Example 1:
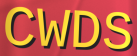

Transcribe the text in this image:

CWDS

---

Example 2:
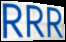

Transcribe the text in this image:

RRR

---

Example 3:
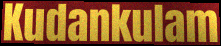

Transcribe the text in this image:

Kudankulam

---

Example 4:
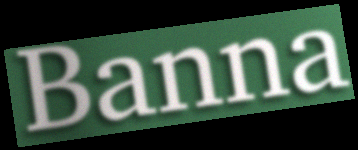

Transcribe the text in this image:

Banna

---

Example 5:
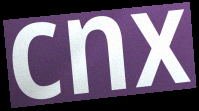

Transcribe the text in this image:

cnx